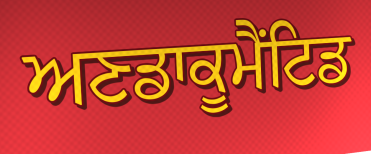
ਅਣਡਾਕੂਮੈਂਟਿਡ